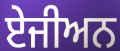
ਏਜੀਅਨ